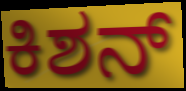
ಕಿಶನ್